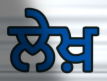
ਲੇਖ਼